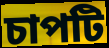
চাপটি